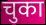
चुका